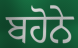
ਬਹੋਨੇ